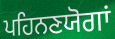
ਪਹਿਨਣਯੋਗਾਂ